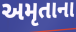
અમૃતાના